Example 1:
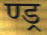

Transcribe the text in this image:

ण्ड्र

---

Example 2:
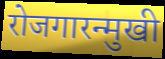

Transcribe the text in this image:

रोजगारन्मुखी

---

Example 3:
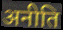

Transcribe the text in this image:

अनीति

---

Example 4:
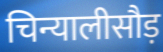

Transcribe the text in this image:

चिन्यालीसौड़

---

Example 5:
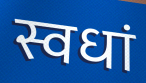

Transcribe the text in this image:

स्वधां